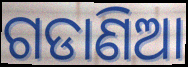
ଗଡାଣିଆ